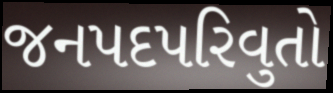
જનપદપરિવુતો